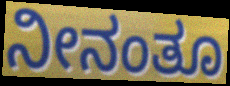
ನೀನಂತೂ